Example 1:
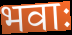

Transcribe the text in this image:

भवाः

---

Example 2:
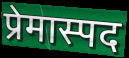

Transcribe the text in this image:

प्रेमास्पद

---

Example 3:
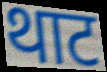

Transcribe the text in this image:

थाट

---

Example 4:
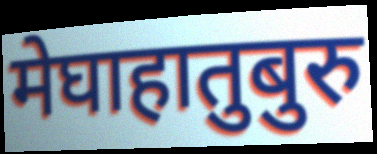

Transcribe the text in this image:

मेघाहातुबुरु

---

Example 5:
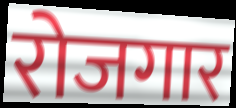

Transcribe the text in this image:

रोजगार